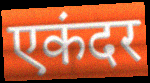
एकंदर